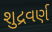
શુદ્રવર્ણ